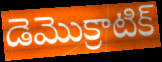
డెమొక్రాటిక్